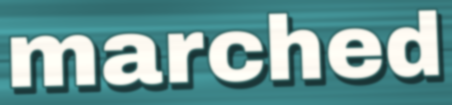
marched